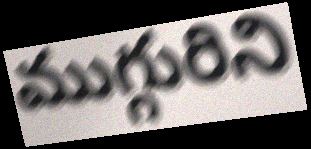
ముగ్గురిని